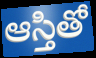
ఆస్తితో